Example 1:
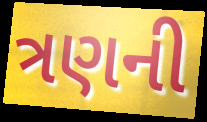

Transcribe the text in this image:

ત્રણની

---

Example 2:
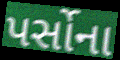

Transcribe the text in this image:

પર્સોના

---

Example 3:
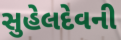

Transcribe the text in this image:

સુહેલદેવની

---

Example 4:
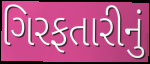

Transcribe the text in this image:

ગિરફતારીનું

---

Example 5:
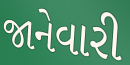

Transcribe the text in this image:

જાનેવારી